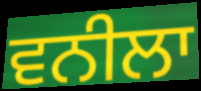
ਵਨੀਲਾ